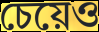
চেয়েও